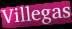
Villegas